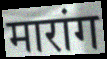
मारांग